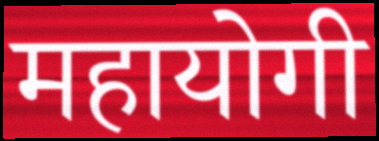
महायोगी